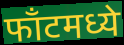
फाँटमध्ये